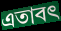
এতাবৎ